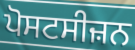
ਪੋਸਟਸੀਜ਼ਨ